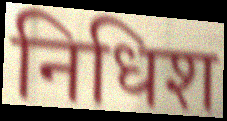
निधिश